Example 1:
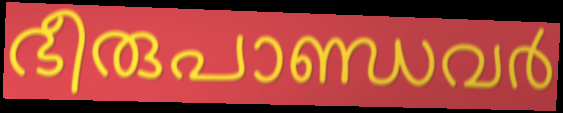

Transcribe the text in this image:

ഭീരുപാണ്ഡവർ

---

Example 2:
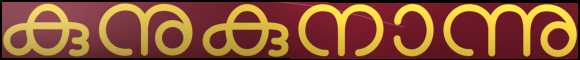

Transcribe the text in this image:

കുനുകുനാന്നു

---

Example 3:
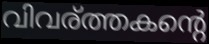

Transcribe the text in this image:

വിവര്ത്തകന്റെ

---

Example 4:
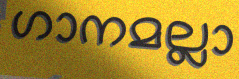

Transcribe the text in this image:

ഗാനമല്ലാ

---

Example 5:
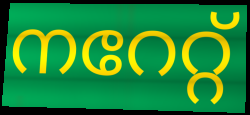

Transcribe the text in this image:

നറേറ്റ്